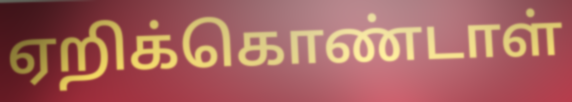
ஏறிக்கொண்டாள்